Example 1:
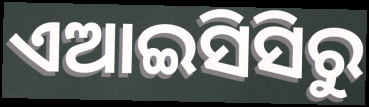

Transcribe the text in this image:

ଏଆଇସିସିରୁ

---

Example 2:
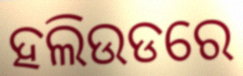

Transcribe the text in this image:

ହଲିଉଡରେ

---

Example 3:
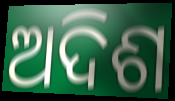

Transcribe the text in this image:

ଅଦିଶ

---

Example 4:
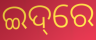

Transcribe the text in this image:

ଇଦ୍‌ରେ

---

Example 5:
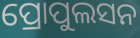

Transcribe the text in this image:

ପ୍ରୋପୁଲସନ